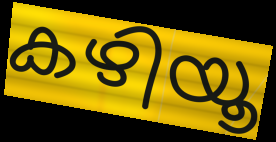
കഴിയൂ